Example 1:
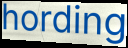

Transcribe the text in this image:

hording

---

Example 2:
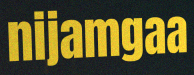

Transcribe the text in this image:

nijamgaa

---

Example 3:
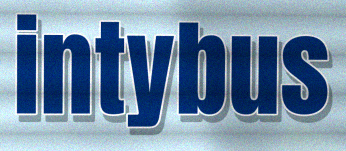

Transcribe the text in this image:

intybus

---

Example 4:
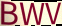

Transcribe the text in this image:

BWV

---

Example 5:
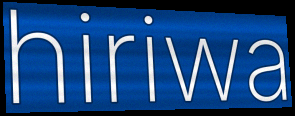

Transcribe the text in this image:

hiriwa